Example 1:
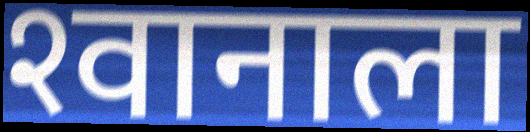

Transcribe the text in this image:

श्वानाला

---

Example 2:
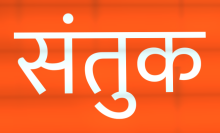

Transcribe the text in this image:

संतुक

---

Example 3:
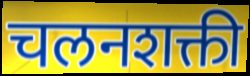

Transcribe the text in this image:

चलनशक्ती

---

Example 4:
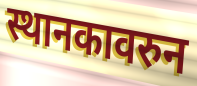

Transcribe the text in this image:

स्थानकावरुन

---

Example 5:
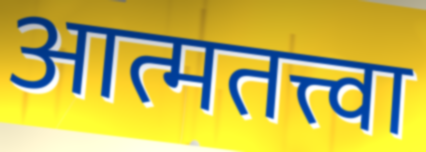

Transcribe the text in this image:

आत्मतत्त्वा